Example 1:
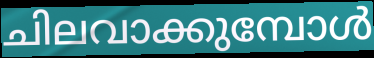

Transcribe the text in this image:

ചിലവാക്കുമ്പോൾ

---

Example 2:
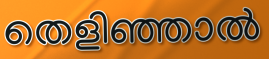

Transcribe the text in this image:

തെളിഞ്ഞാൽ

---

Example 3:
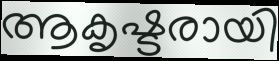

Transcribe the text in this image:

ആകൃഷ്ടരായി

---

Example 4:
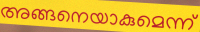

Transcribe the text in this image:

അങ്ങനെയാകുമെന്ന്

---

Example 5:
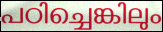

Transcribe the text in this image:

പഠിച്ചെങ്കിലും